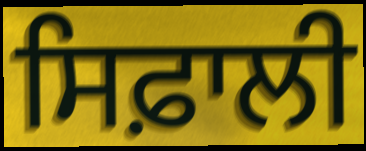
ਸਿਫ਼ਾਲੀ